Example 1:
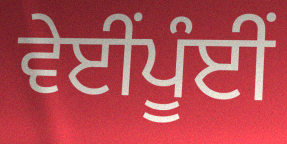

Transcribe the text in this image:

ਵੇਈਂਪੂੰਈਂ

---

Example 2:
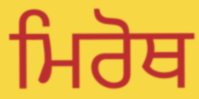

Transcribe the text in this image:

ਮਿਰੋਥ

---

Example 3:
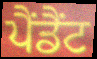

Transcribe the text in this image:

ਪੈਂਡੈਂਟ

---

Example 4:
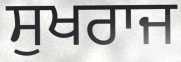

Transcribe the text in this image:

ਸੁਖਰਾਜ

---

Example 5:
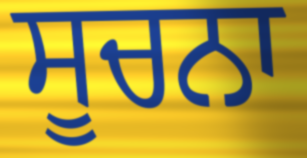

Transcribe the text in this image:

ਸੂਚਨਾ